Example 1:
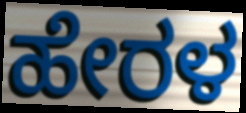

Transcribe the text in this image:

ಹೇರಳ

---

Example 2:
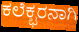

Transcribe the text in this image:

ಕಲೆಕ್ಟರನಾಗಿ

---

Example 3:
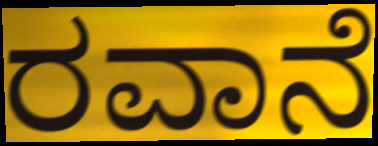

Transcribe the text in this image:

ರವಾನೆ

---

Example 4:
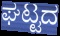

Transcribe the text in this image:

ಘಟ್ಟದ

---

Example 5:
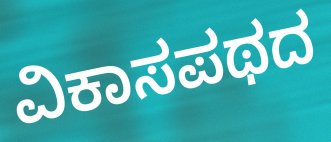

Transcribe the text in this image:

ವಿಕಾಸಪಥದ